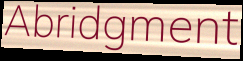
Abridgment